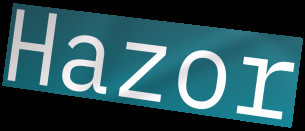
Hazor